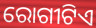
ରୋଗୀଟିଏ